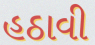
હઠાવી